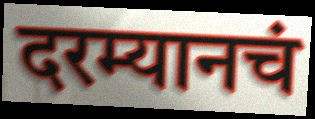
दरम्यानचं